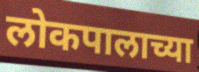
लोकपालाच्या